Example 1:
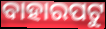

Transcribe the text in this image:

ବାହାରପଟୁ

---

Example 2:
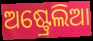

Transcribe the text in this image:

ଅଷ୍ଟ୍ରେଲିଆ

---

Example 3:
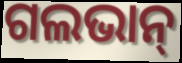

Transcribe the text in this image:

ଗଲଭାନ୍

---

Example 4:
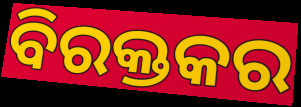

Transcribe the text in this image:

ବିରକ୍ତକର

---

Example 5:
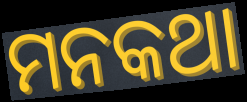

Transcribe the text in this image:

ମନକଥା